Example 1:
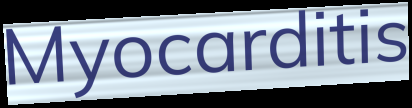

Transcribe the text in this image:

Myocarditis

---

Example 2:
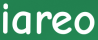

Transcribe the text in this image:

iareo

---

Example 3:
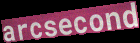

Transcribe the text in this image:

arcsecond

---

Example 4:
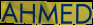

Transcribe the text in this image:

AHMED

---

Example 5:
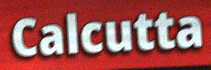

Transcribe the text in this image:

Calcutta